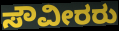
ಸೌವೀರರು